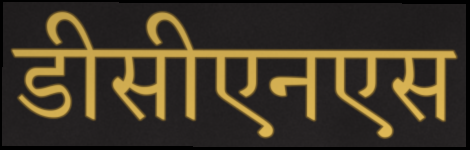
डीसीएनएस